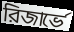
রিজার্ভে